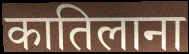
कातिलाना